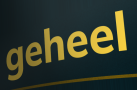
geheel